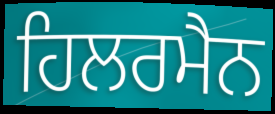
ਹਿਲਰਮੈਨ